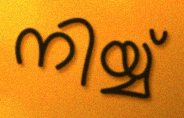
നിയ്യ്